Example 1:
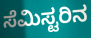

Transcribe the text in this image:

ಸೆಮಿಸ್ಟರಿನ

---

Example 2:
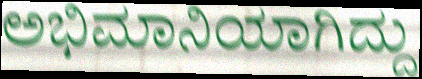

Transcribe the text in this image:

ಅಭಿಮಾನಿಯಾಗಿದ್ದು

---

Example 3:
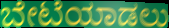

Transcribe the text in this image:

ಬೇಟೆಯಾಡಲು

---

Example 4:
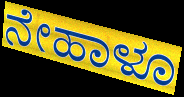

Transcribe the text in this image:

ನೇಹಾಳೂ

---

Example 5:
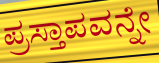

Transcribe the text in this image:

ಪ್ರಸ್ತಾಪವನ್ನೇ